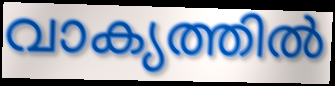
വാക്യത്തിൽ